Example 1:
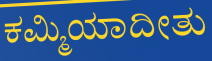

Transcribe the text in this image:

ಕಮ್ಮಿಯಾದೀತು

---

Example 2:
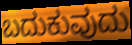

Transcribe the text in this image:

ಬದುಕುವುದು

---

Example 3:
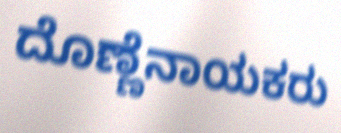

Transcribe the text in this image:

ದೊಣ್ಣೆನಾಯಕರು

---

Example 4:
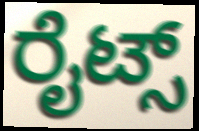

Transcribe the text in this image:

ರೈಟ್ಸ್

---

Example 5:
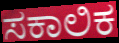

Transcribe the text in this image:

ಸಕಾಲಿಕ